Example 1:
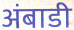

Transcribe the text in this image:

अंबाडी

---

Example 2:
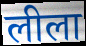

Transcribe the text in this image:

लीला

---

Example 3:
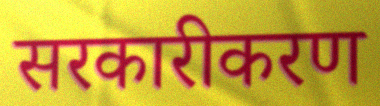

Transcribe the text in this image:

सरकारीकरण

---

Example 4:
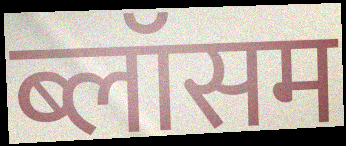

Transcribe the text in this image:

ब्लॉसम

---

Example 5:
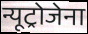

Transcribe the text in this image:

न्यूट्रोजेना